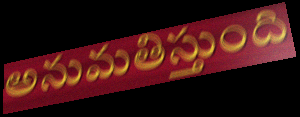
అనుమతిస్తుంది